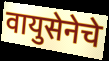
वायुसेनेचे